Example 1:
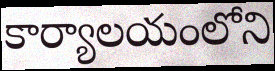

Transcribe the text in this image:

కార్యాలయంలోని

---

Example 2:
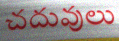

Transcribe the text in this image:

చదువులు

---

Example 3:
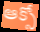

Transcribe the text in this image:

ఆక్సో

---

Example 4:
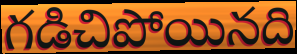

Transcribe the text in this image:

గడిచిపోయినది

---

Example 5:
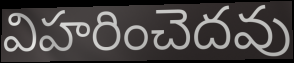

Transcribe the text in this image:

విహరించెదవు